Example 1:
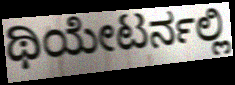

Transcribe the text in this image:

ಥಿಯೇಟರ್ನಲ್ಲಿ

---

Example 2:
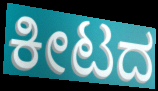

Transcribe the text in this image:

ಕೀಟದ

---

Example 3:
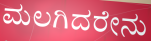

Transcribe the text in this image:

ಮಲಗಿದರೇನು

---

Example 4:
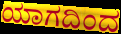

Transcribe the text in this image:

ಯಾಗದಿಂದ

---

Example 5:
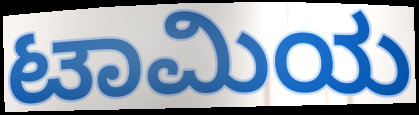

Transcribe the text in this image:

ಟಾಮಿಯ